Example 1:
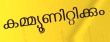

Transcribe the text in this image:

കമ്മ്യൂണിറ്റിക്കും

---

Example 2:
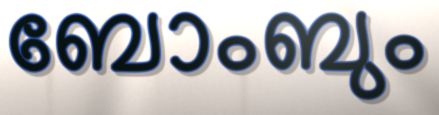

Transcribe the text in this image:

ബോംബും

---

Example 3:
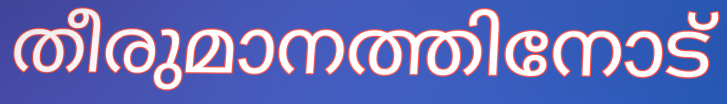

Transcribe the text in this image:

തീരുമാനത്തിനോട്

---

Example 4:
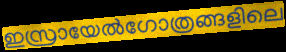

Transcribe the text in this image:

ഇസ്രായേൽഗോത്രങ്ങളിലെ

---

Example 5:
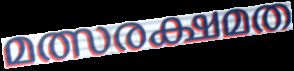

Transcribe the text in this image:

മത്സരക്ഷമത